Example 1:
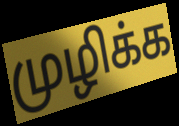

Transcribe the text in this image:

முழிக்க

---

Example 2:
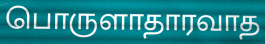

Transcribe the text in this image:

பொருளாதாரவாத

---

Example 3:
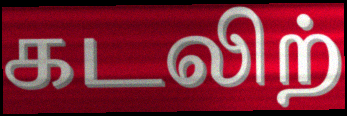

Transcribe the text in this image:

கடலிற்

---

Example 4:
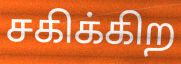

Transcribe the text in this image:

சகிக்கிற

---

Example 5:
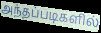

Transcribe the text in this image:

அந்தப்படிகளில்